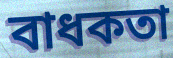
বাধকতা